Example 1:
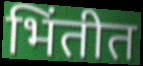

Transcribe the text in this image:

भिंतीत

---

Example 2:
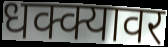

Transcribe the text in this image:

धक्क्यावर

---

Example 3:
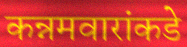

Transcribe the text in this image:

कन्नमवारांकडे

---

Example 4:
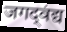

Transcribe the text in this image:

जगद्‌वंद्य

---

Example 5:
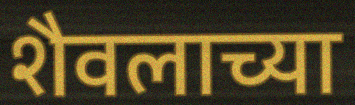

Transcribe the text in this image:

शैवलाच्या